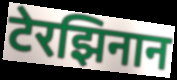
टेरझिनान